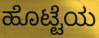
ಹೊಟ್ಟೆಯ